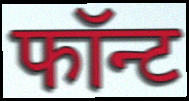
फॉन्ट